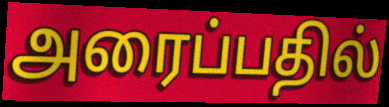
அரைப்பதில்